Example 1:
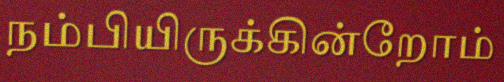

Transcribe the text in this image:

நம்பியிருக்கின்றோம்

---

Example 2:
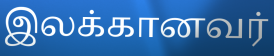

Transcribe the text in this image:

இலக்கானவர்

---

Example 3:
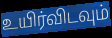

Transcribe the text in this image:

உயிர்விடவும்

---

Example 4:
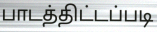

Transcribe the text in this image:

பாடத்திட்டப்படி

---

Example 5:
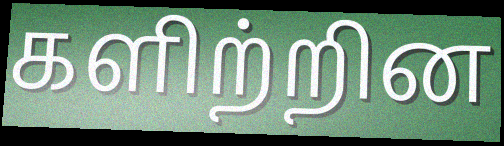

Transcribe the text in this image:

களிற்றின